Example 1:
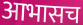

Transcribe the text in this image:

आभासच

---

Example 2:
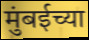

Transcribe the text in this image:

मुंबईच्या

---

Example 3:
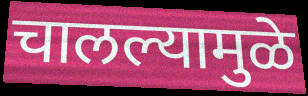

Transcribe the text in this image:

चालल्यामुळे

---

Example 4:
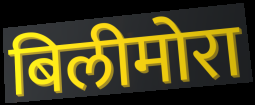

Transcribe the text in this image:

बिलीमोरा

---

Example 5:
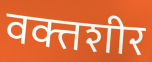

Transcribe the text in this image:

वक्तशीर